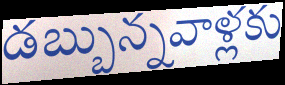
డబ్బున్నవాళ్లకు